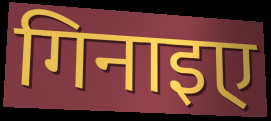
गिनाइए